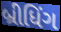
બ્રીધિંગ